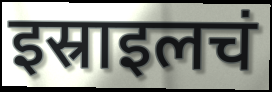
इस्राइलचं